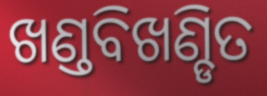
ଖଣ୍ଡବିଖଣ୍ଡିତ